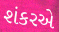
શંકરએ